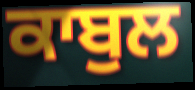
ਕਾਬੁਲ